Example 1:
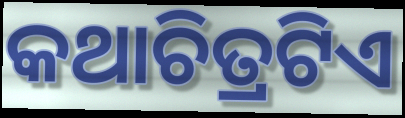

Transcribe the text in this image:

କଥାଚିତ୍ରଟିଏ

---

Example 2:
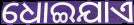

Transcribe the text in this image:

ଧୋଇଯାଏ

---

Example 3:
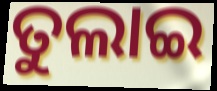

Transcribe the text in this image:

ତୁଲାଇ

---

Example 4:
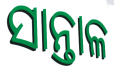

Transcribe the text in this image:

ସାନ୍ତାଳ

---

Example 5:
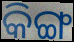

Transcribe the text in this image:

କିଙ୍ଗ